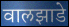
वालझाडे